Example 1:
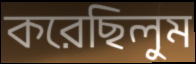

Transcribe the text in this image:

করেছিলুম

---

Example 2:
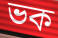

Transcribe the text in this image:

ভক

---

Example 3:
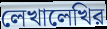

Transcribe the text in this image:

লেখালেখির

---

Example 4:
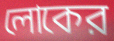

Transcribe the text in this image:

লোকের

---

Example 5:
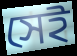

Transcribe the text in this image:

সেই